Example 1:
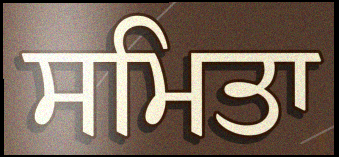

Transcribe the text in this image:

ਸਮਿਤਾ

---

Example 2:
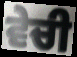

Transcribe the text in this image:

ਵੇਚੀ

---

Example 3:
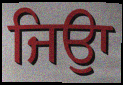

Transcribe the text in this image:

ਜਿਉਾ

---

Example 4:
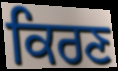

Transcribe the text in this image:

ਕਿਰਣ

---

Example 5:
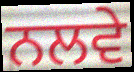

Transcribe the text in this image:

ਨਲਵੇ